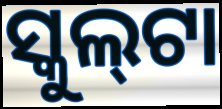
ସ୍କୁଲ୍‍ଟା